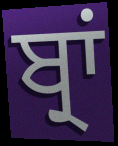
ਬ੍ਰਾਂ